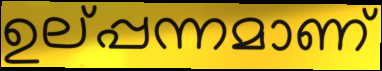
ഉല്പ്പന്നമാണ്